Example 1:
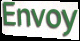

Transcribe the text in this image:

Envoy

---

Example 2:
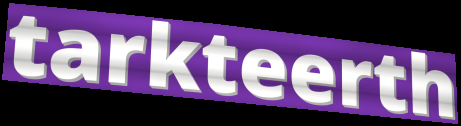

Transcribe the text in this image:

tarkteerth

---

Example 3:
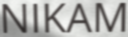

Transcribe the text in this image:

NIKAM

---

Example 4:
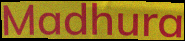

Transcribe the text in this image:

Madhura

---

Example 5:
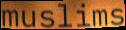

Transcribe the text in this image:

muslims